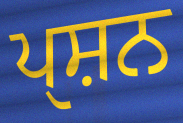
ਪੑਸ਼ਨ